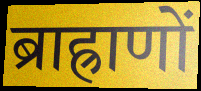
ब्राह्राणों